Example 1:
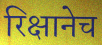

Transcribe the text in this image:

रिक्षानेच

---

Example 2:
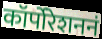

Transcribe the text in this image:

कॉर्पोरेशननं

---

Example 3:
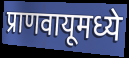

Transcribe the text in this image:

प्राणवायूमध्ये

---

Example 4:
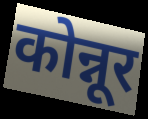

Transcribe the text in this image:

कोन्नूर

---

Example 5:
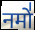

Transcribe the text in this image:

नमो॑